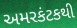
અમરકંટકથી